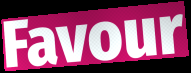
Favour